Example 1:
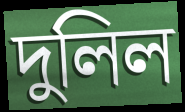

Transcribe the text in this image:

দুলিল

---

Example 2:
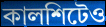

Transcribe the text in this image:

কালশিটেও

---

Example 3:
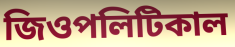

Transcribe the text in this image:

জিওপলিটিকাল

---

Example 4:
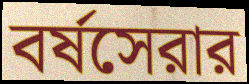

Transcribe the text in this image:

বর্ষসেরার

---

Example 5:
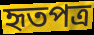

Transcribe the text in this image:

হৃতপত্র